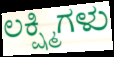
ಲಕ್ಷ್ಮಿಗಳು